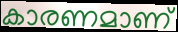
കാരണമാണ്